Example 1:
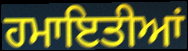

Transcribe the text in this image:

ਹਮਾਇਤੀਆਂ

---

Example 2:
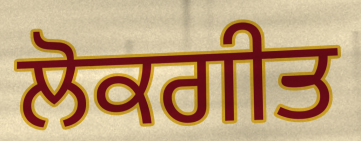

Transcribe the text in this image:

ਲੋਕਗੀਤ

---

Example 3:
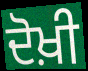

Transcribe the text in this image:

ਦੋਖ਼ੀ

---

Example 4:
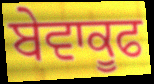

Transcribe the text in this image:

ਬੇਵਾਕੂਫ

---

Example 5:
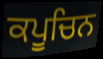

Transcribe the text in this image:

ਕਪੂਚਿਨ